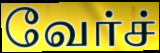
வேர்ச்